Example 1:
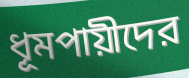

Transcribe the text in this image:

ধূমপায়ীদের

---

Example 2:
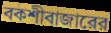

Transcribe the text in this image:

বকশীবাজারের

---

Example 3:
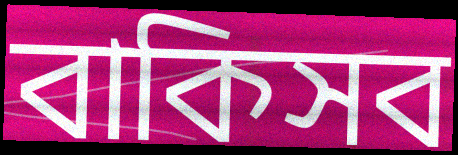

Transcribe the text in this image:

বাকিসব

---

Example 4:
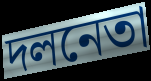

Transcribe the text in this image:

দলনেতা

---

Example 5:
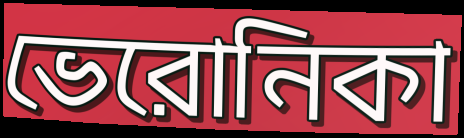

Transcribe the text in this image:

ভেরোনিকা